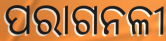
ପରାଗନଳୀ